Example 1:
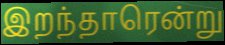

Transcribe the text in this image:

இறந்தாரென்று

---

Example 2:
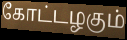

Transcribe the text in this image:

கோட்டழகும்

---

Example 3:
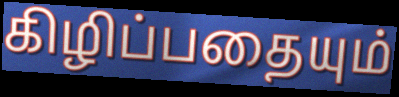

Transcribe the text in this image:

கிழிப்பதையும்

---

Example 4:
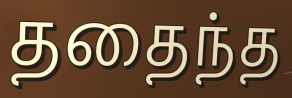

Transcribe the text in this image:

ததைந்த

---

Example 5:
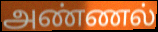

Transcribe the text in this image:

அண்ணல்